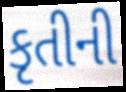
કૃતીની